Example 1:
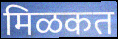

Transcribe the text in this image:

मिळकत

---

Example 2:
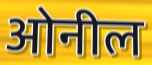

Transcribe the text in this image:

ओनील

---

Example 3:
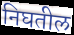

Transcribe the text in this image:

निघतील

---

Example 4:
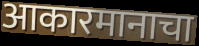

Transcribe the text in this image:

आकारमानाचा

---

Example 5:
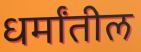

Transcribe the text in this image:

धर्मांतील